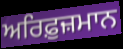
ਅਰਿਫ਼ੁਜ਼ਮਾਨ